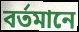
বৰ্তমানে